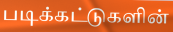
படிக்கட்டுகளின்